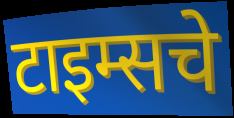
टाइम्सचे